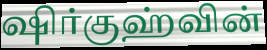
ஷிர்குஹ்வின்